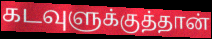
கடவுளுக்குத்தான்